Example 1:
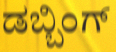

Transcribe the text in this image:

ಡಬ್ಬಿಂಗ್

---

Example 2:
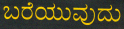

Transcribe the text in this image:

ಬರೆಯುವುದು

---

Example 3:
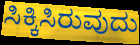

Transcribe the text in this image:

ಸಿಕ್ಕಿಸಿರುವುದು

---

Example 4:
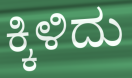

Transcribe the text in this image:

ಕ್ಕಿಳಿದು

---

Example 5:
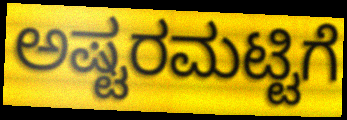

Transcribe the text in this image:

ಅಷ್ಟರಮಟ್ಟಿಗೆ